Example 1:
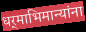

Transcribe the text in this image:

धर्माभिमान्यांना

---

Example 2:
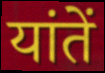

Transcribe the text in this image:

यांतें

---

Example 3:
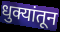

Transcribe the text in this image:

धुक्यांतून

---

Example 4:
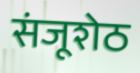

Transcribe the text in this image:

संजूशेठ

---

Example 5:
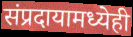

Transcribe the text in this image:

संप्रदायामध्येही